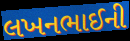
લખનભાઈની